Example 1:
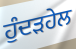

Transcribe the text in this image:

ਹੁੰਦੜਹੇਲ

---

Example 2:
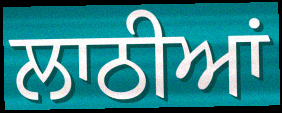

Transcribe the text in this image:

ਲਾਠੀਆਂ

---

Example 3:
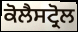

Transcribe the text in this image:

ਕੋਲੈਸਟ੍ਰੋਲ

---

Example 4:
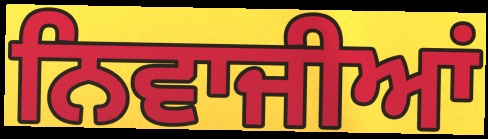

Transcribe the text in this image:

ਨਿਵਾਜੀਆਂ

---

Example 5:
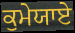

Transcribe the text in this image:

ਕੁਮੇਯਾਏ